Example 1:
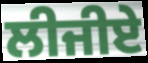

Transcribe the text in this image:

ਲੀਜੀਏ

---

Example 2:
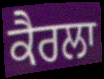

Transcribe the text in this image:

ਕੈਰਲਾ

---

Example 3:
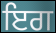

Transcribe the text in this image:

ਇਗ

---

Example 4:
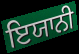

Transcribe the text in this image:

ਇਯਾਨੀ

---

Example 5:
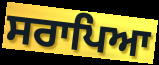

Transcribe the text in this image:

ਸਰਾਪਿਆ